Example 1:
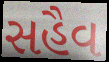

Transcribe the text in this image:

સહૈવ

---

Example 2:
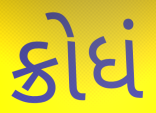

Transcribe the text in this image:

ક્રોધં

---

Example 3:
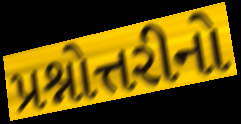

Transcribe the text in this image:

પ્રશ્નોત્તરીનો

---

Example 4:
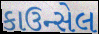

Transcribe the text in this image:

કાઉન્સેલ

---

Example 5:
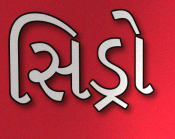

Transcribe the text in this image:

સિડ્રો